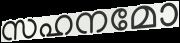
സഹനമോ